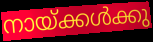
നായ്ക്കൾക്കു